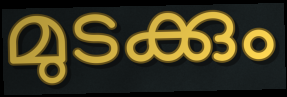
മുടക്കും